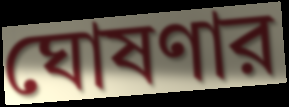
ঘোষণার